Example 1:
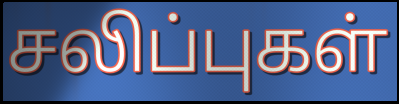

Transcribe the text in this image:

சலிப்புகள்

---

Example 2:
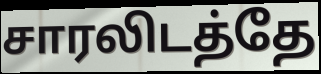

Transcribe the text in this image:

சாரலிடத்தே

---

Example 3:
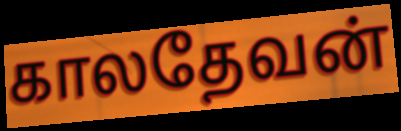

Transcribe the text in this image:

காலதேவன்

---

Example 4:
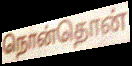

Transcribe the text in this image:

நொன்தொன்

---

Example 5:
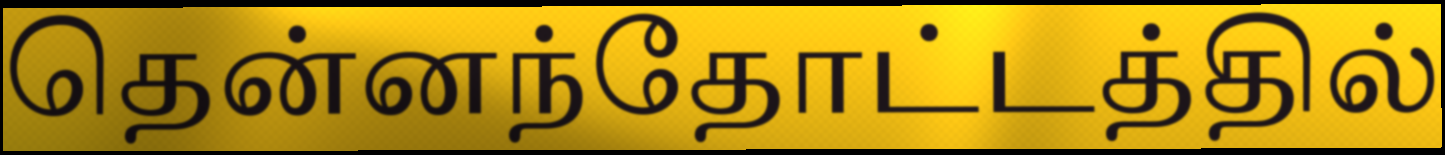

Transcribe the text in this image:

தென்னந்தோட்டத்தில்